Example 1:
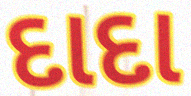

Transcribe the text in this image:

દાદા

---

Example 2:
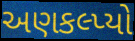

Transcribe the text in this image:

અણકલ્પ્યો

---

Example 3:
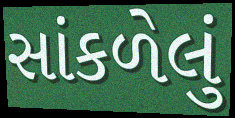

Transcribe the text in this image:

સાંકળેલું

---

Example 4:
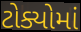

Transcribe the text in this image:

ટોક્યોમાં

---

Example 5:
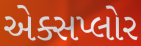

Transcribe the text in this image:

એક્સપ્લોર